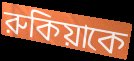
রুকিয়াকে